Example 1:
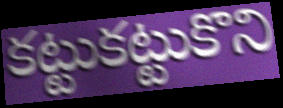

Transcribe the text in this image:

కట్టుకట్టుకొని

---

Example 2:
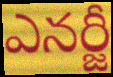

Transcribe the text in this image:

ఎనర్జీ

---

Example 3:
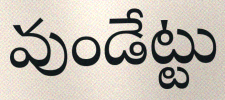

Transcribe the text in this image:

వుండేట్టు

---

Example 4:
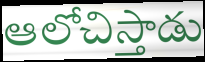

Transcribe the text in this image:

ఆలోచిస్తాడు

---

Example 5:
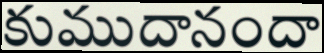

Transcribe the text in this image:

కుముదానందా